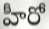
హీరో